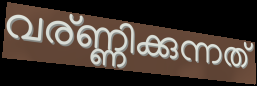
വര്ണ്ണിക്കുന്നത്